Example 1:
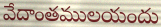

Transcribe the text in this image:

వేదాంతములయందు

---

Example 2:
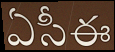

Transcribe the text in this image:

ఏసీఈ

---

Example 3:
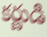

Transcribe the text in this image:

కర్ణుడి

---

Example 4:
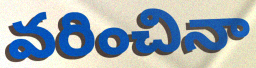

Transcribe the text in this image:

వరించినా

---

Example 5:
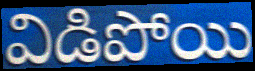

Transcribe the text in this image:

విడిపోయి